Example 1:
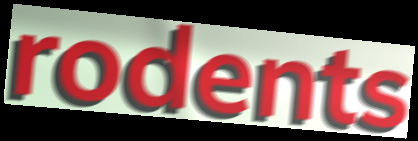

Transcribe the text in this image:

rodents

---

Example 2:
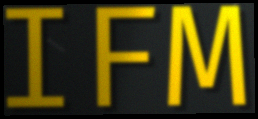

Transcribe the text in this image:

IFM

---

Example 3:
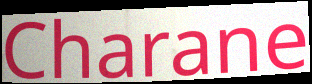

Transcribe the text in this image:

Charane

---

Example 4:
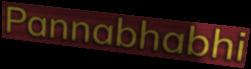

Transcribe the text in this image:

Pannabhabhi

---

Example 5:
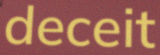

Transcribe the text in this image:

deceit